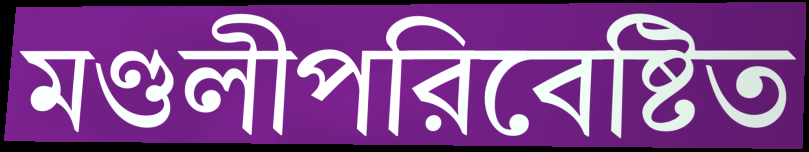
মণ্ডলীপরিবেষ্টিত